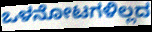
ಒಳನೋಟಗಳಿಲ್ಲದ